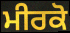
ਮੀਰਕੋ